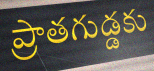
ప్రాతగుడ్డకు